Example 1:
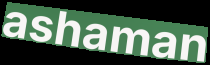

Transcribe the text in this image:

ashaman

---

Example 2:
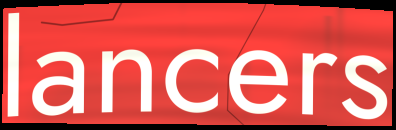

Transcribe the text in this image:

lancers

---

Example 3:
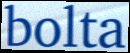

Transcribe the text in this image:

bolta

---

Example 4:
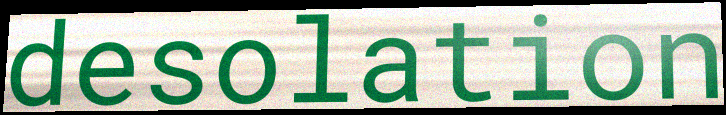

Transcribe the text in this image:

desolation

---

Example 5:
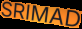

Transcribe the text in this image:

SRIMAD